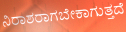
ನಿರಾಶರಾಗಬೇಕಾಗುತ್ತದೆ